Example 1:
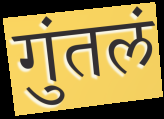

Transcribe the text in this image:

गुंतलं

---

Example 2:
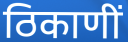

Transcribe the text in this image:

ठिकाणीं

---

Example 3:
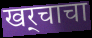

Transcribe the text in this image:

खर्चाचा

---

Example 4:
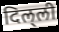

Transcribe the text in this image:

दिल्ली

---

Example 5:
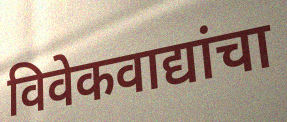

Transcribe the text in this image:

विवेकवाद्यांचा